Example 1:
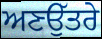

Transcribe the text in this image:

ਅਣਉੱਤਰੇ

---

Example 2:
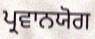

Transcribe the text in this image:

ਪ੍ਰਵਾਨਯੋਗ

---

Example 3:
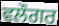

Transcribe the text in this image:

ਵਲੌਗਰ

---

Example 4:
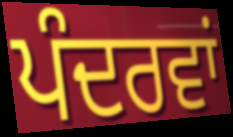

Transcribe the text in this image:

ਪੰਦਰਵਾਂ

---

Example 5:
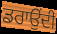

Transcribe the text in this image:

ਡਰਾਉਂਦੀ